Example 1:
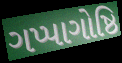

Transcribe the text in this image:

ગપ્પાગોષ્ઠિ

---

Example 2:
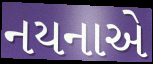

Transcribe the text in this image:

નયનાએ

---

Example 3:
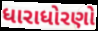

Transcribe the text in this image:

ધારાધોરણો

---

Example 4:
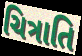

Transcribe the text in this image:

ચિત્રાતિ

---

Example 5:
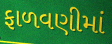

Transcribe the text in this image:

ફાળવણીમાં